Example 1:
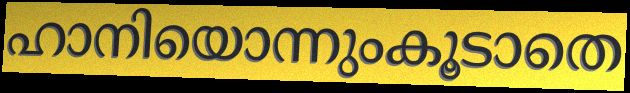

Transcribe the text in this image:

ഹാനിയൊന്നുംകൂടാതെ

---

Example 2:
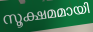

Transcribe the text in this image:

സൂക്ഷമമായി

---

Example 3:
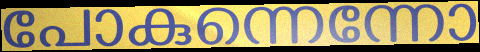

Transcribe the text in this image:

പോകുന്നെന്നോ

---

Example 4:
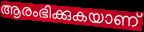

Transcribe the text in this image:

ആരംഭിക്കുകയാണ്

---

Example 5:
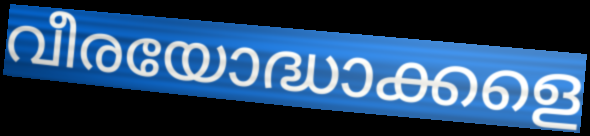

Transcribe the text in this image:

വീരയോദ്ധാക്കളെ